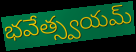
భవేత్స్వయమ్